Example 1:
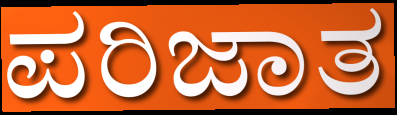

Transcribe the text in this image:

ಪರಿಜಾತ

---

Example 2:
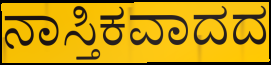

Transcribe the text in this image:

ನಾಸ್ತಿಕವಾದದ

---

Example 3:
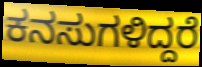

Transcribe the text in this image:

ಕನಸುಗಳಿದ್ದರೆ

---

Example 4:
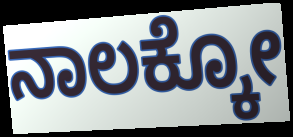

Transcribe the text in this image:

ನಾಲಕ್ಕೋ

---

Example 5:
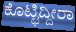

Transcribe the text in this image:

ಕೊಟ್ಟಿದ್ದೀರಾ